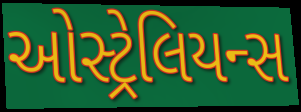
ઓસ્ટ્રેલિયન્સ